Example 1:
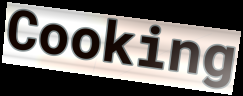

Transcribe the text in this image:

Cooking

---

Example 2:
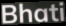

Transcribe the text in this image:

Bhati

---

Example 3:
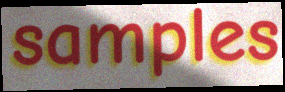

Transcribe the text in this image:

samples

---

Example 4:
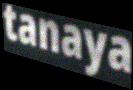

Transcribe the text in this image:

tanaya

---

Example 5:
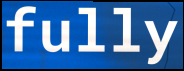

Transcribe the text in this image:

fully